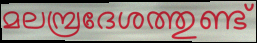
മലമ്പ്രദേശത്തുണ്ട്